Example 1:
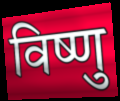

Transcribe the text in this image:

विष्णु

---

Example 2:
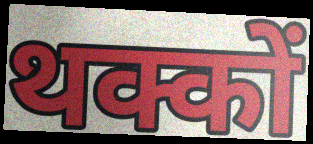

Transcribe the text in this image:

थक्कों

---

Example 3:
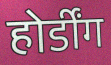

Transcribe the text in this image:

होर्डींग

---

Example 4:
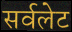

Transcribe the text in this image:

सर्वलेट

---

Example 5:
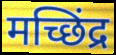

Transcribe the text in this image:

मच्छिंद्र